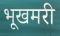
भूखमरी